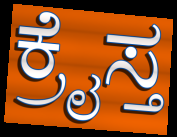
ಕ್ರೈಸ್ತ